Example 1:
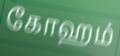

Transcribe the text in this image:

கோஹம்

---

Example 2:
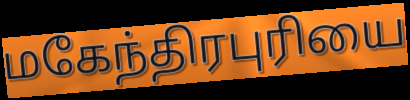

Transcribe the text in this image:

மகேந்திரபுரியை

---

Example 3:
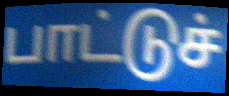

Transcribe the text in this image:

பாட்டுச்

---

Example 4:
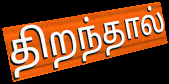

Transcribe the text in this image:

திறந்தால்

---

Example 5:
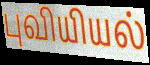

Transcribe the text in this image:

புவியியல்